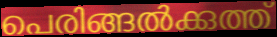
പെരിങ്ങൽക്കുത്ത്